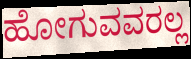
ಹೋಗುವವರಲ್ಲ